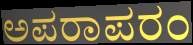
ಅಪರಾಪರಂ